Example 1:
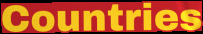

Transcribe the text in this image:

Countries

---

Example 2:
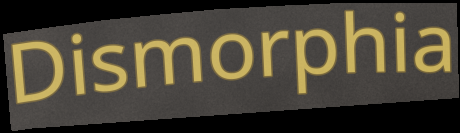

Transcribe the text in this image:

Dismorphia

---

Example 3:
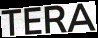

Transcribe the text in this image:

TERA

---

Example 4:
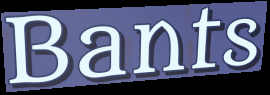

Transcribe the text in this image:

Bants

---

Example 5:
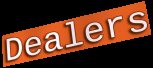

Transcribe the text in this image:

Dealers